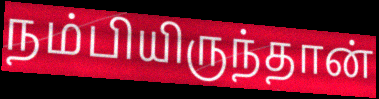
நம்பியிருந்தான்